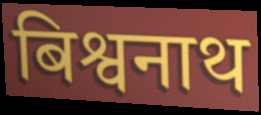
बिश्वनाथ